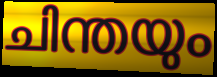
ചിന്തയും